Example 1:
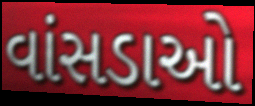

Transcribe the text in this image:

વાંસડાઓ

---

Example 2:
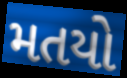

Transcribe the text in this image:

મતયો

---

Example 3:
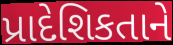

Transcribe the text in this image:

પ્રાદેશિકતાને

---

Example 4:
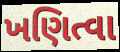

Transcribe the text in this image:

ખણિત્વા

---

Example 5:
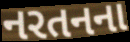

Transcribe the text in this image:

નરતનના